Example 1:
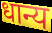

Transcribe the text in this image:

धान्य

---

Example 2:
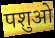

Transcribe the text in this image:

पशुओ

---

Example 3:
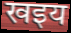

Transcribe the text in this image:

खइय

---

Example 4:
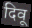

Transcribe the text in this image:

दिवू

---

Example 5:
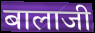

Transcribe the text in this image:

बालाजी